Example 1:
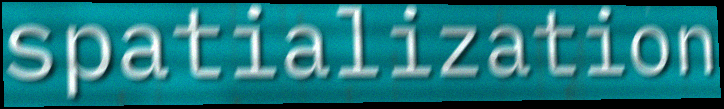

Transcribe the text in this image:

spatialization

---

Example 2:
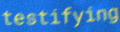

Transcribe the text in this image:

testifying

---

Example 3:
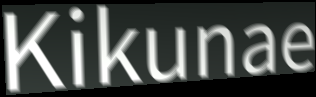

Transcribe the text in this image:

Kikunae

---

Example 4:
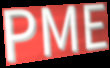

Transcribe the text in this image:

PME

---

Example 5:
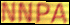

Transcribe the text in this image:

NNPA